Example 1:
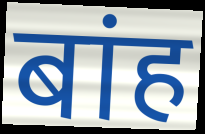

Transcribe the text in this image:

बांह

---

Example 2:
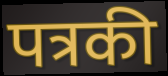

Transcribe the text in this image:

पत्रकी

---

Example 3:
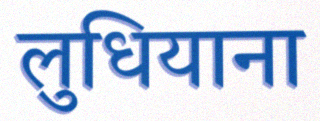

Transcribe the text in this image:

लुधियाना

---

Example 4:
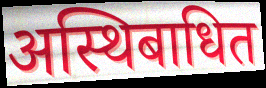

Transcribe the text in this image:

अस्थिबाधित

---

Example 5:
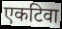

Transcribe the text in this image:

एकटिवा